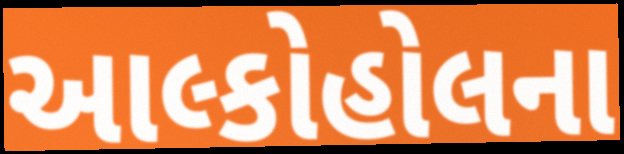
આલ્કોહોલના